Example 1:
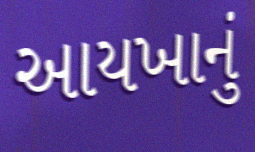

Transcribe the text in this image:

આયખાનું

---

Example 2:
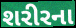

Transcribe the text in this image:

શરીરના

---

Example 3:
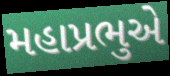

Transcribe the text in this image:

મહાપ્રભુએ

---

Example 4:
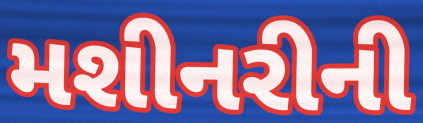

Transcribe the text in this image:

મશીનરીની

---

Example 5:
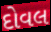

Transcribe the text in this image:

દોવલ